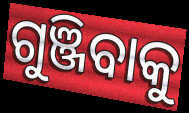
ଗୁଞ୍ଜିବାକୁ